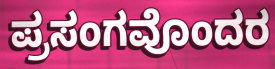
ಪ್ರಸಂಗವೊಂದರ